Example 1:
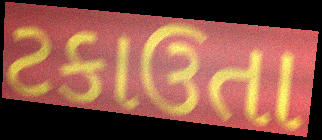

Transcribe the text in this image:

ટકાઉતા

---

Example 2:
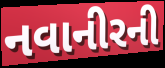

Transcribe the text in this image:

નવાનીરની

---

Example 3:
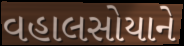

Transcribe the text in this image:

વહાલસોયાને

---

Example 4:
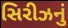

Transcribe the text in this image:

સિરીઝનું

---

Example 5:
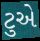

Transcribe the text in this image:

ટુએ